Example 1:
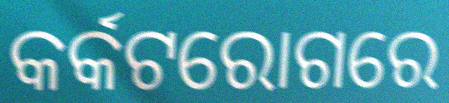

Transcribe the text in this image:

କର୍କଟରୋଗରେ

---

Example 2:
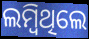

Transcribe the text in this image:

ଲମ୍ବିଥିଲେ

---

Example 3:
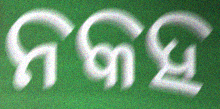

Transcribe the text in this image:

ନକହ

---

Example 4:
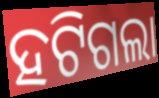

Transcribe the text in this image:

ହଟିଗଲା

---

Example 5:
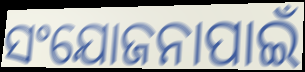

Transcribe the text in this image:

ସଂଯୋଜନାପାଇଁ